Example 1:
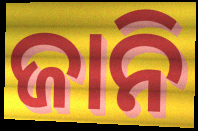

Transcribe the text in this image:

ଜାନି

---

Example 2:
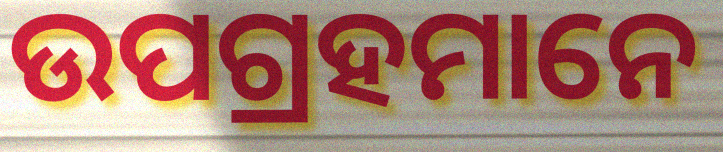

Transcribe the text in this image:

ଉପଗ୍ରହମାନେ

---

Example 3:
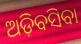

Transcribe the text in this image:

ଅଡ଼ିବସିବା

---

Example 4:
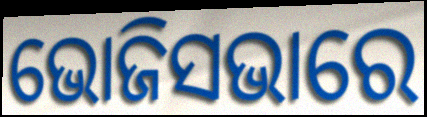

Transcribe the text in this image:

ଭୋଜିସଭାରେ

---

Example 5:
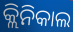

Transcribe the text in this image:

କ୍ଲିନିକାଲ